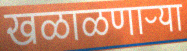
खळाळणाऱ्या